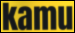
kamu